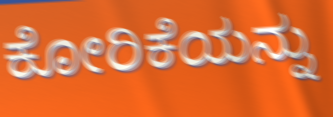
ಕೋರಿಕೆಯನ್ನು